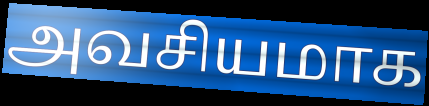
அவசியமாக